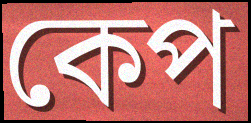
কেপ